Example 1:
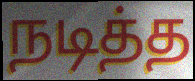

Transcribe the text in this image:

நடித்த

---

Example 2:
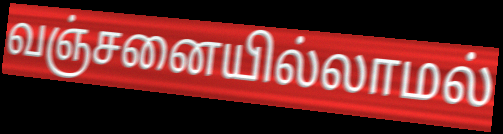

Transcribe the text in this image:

வஞ்சனையில்லாமல்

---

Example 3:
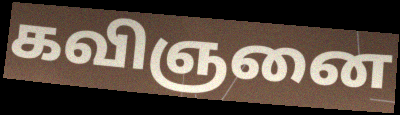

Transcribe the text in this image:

கவிஞனை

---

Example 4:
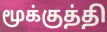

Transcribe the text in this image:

மூக்குத்தி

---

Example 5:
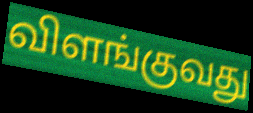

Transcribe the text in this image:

விளங்குவது